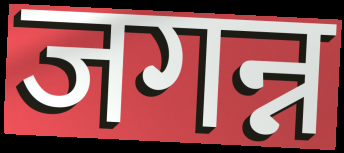
जगन्न